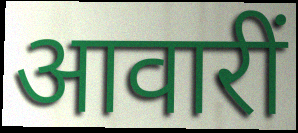
आवारीं